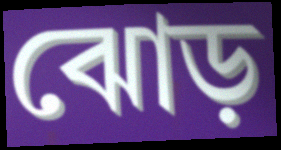
ঝোড়